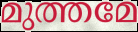
മുത്തമേ